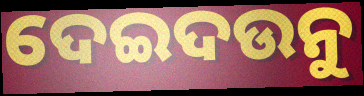
ଦେଇଦଉନୁ